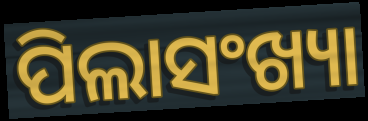
ପିଲାସଂଖ୍ୟା